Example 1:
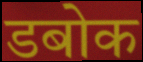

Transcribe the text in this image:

डबोक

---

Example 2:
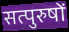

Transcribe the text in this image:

सत्पुरुषों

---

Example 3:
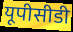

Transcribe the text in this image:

यूपीसीडी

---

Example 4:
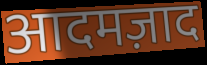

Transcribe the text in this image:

आदमज़ाद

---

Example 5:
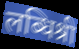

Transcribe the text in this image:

लब्धिश्री